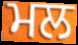
ਮਲ